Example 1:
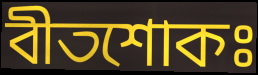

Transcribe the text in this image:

বীতশোকঃ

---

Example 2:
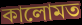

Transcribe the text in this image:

কালোমত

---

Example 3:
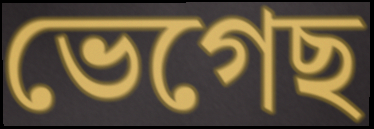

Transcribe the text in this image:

ভেগেছ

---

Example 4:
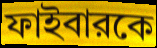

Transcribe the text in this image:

ফাইবারকে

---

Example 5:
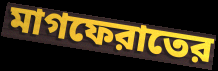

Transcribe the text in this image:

মাগফেরাতের